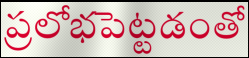
ప్రలోభపెట్టడంతో